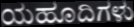
ಯಹೂದಿಗಳು